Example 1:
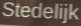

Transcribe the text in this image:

Stedelijk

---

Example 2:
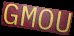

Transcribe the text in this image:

GMOU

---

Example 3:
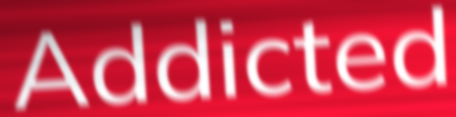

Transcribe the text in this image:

Addicted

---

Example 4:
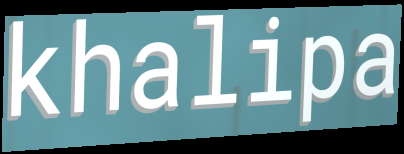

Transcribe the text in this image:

khalipa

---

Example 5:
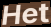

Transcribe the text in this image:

Het